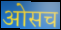
ओसच